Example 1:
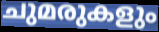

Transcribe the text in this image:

ചുമരുകളും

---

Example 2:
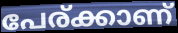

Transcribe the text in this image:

പേര്ക്കാണ്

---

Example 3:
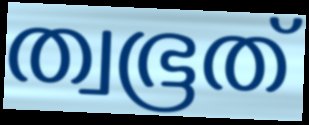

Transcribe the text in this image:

ത്വഭൂത്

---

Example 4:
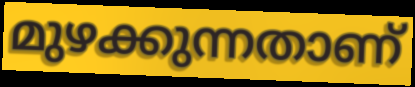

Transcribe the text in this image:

മുഴക്കുന്നതാണ്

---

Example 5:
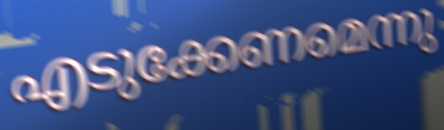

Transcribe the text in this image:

എടുക്കേണമെന്നു